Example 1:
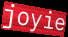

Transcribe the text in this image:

joyie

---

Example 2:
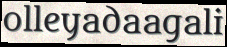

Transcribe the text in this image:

olleyadaagali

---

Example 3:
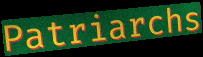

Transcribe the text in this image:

Patriarchs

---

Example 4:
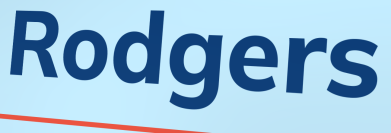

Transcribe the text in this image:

Rodgers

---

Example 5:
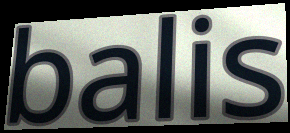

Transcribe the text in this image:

balis